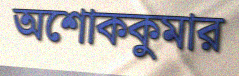
অশোককুমার